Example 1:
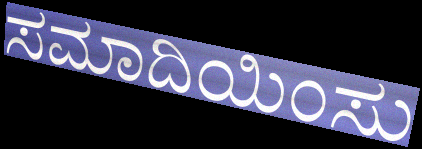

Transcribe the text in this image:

ಸಮಾದಿಯಿಂಸು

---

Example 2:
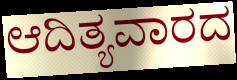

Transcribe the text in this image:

ಆದಿತ್ಯವಾರದ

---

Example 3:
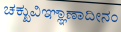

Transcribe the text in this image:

ಚಕ್ಖುವಿಞ್ಞಾಣಾದೀನಂ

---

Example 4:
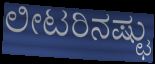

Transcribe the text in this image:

ಲೀಟರಿನಷ್ಟು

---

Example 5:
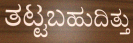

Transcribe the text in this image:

ತಟ್ಟಬಹುದಿತ್ತು